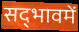
सद्भावमें